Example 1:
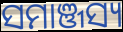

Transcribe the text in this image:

ସମାଞ୍ଜସ୍ୟ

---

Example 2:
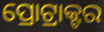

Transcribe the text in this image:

ପ୍ରୋଟ୍ରାକ୍ଟର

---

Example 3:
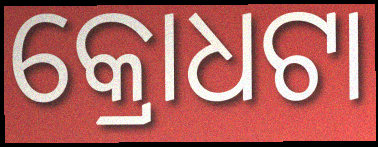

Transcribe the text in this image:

କ୍ରୋଧଟା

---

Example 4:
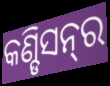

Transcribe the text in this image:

କଣ୍ଡିସନ୍‌ର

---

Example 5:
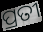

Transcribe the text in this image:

ପ୍ରତୀ